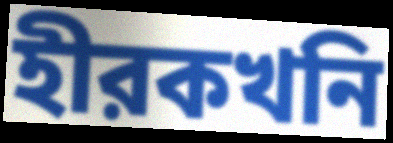
হীরকখনি